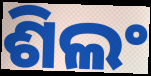
ଶିଲଂ